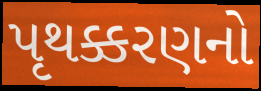
પૃથક્કરણનો